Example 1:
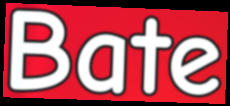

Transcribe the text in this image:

Bate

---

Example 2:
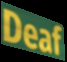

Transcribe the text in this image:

Deaf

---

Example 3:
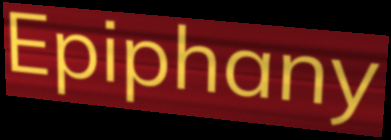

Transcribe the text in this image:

Epiphany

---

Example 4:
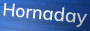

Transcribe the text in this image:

Hornaday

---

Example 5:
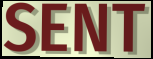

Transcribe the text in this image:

SENT